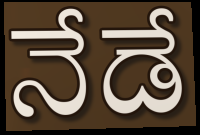
నేడే